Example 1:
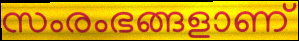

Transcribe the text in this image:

സംരംഭങ്ങളാണ്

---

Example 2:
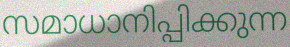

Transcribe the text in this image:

സമാധാനിപ്പിക്കുന്ന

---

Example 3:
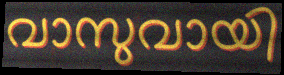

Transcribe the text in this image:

വാസുവായി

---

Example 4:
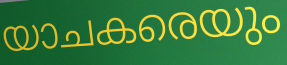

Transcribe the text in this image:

യാചകരെയും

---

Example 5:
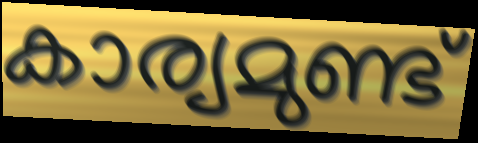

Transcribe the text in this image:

കാര്യമുണ്ട്